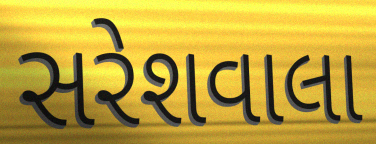
સરેશવાલા